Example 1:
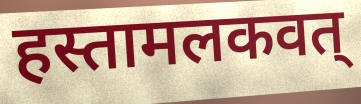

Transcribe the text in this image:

हस्तामलकवत्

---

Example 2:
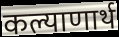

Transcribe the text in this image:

कल्याणार्थ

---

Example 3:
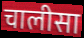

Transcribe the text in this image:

चालीसा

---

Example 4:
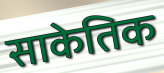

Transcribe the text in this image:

साकेतिक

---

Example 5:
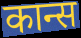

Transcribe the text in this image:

कान्स